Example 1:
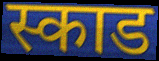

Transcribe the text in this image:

स्काड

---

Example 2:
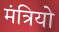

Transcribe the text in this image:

मंत्रियो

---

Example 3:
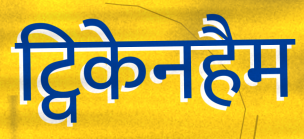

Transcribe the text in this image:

ट्विकेनहैम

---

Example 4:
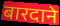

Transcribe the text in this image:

बारदाने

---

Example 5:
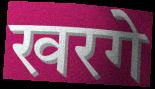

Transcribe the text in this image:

खरगे